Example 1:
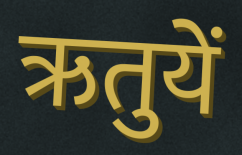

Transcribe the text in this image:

ऋतुयें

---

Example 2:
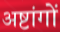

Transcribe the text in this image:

अष्टांगों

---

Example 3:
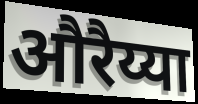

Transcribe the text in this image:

औरैय्या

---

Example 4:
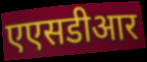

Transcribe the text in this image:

एएसडीआर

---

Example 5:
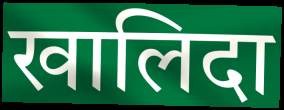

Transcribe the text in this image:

खालिदा